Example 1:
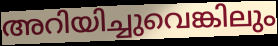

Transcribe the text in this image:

അറിയിച്ചുവെങ്കിലും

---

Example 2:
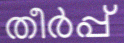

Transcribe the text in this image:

തീർപ്പ്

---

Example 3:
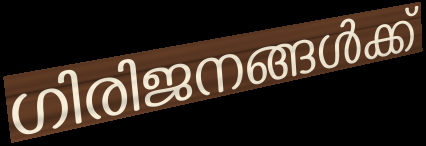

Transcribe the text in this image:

ഗിരിജനങ്ങൾക്ക്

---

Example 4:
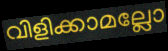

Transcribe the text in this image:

വിളിക്കാമല്ലോ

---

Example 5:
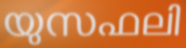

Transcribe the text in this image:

യുസഫലി